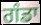
ਗੰਡਾ